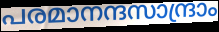
പരമാനന്ദസാന്ദ്രാം